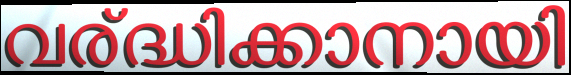
വര്ദ്ധിക്കാനായി